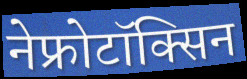
नेफ्रोटॉक्सिन